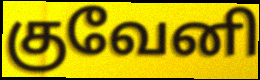
குவேனி